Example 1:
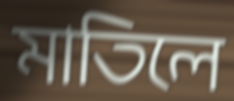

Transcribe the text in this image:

মাতিলে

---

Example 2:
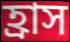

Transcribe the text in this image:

হ্ৰাস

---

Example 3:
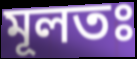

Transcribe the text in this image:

মূলতঃ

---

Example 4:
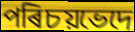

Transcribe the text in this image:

পৰিচয়ভেদে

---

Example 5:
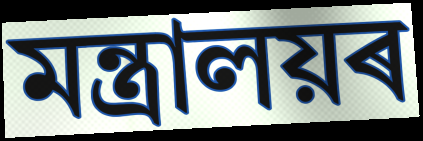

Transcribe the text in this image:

মন্ত্ৰালয়ৰ